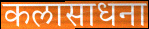
कलासाधना